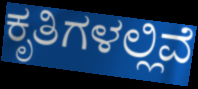
ಕೃತಿಗಳಲ್ಲಿವೆ